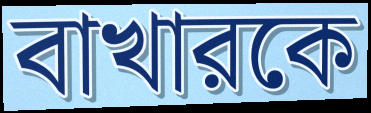
বাখারকে